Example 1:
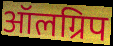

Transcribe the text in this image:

ऑलग्रिप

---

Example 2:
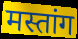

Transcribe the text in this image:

मस्तांग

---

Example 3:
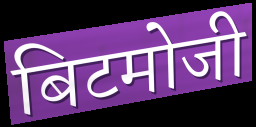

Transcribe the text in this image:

बिटमोजी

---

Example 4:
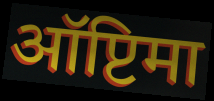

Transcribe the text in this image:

ऑप्टिमा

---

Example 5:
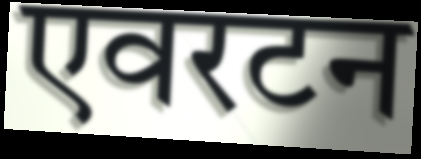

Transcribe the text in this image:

एवरटन